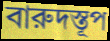
বারুদস্তূপ